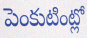
పెంకుటింట్లో